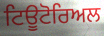
ਟਿਊਟੋਰਿਅਲ